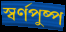
স্বর্ণপুষ্প